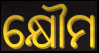
କ୍ଷୌମ